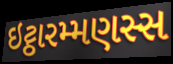
ઇટ્ઠારમ્મણસ્સ